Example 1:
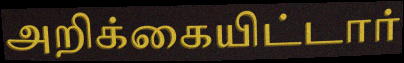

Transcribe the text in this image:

அறிக்கையிட்டார்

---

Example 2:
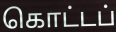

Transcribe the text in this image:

கொட்டப்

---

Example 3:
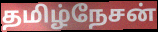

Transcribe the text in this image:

தமிழ்நேசன்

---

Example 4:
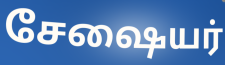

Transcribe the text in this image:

சேஷையர்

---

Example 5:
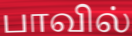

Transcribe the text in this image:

பாவில்